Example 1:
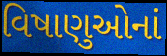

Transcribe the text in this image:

વિષાણુઓનાં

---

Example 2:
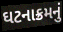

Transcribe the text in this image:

ઘટનાક્રમનું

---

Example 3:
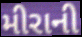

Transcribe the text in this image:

મીરાની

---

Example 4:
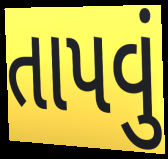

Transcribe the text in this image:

તાપવું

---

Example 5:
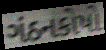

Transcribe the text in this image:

ગંઠનકોષો